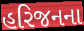
હરિજનના